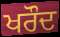
ਖਰੌਦ